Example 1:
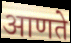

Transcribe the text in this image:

आणते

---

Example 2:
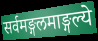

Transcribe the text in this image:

सर्वमङ्गलमाङ्गल्ये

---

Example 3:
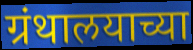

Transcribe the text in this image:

ग्रंथालयाच्या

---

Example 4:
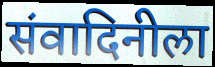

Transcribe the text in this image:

संवादिनीला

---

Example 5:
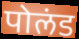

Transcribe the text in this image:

पोलंड